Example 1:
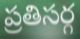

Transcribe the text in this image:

ప్రతిసర్గ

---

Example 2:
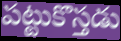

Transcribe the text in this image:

పట్టుకొస్తడు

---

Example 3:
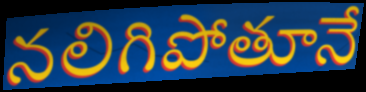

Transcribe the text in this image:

నలిగిపోతూనే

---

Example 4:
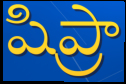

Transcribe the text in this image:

షిప్రా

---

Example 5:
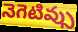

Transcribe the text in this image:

నెగెటివ్సు